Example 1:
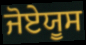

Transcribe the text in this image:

ਜੋਏਯੂਸ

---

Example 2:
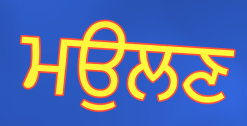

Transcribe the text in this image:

ਮਉਲਣ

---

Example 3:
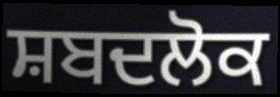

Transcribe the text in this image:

ਸ਼ਬਦਲੋਕ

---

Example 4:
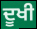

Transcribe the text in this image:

ਦੂਖੀ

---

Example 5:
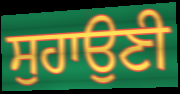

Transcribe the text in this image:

ਸੁਹਾਉਣੀ